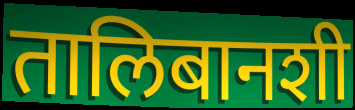
तालिबानशी